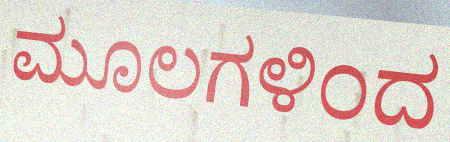
ಮೂಲಗಳಿಂದ